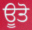
ਊਤੋ